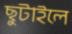
ছুটাইলে